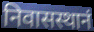
निवासस्थानं